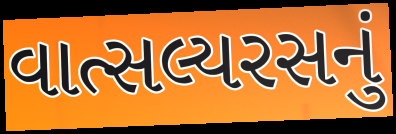
વાત્સલ્યરસનું